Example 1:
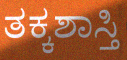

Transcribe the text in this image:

ತಕ್ಕಶಾಸ್ತಿ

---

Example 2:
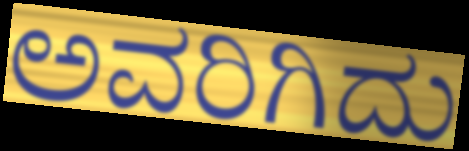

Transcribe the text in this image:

ಅವರಿಗಿದು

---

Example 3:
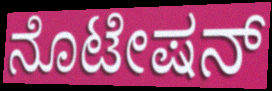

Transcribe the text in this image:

ನೊಟೇಷನ್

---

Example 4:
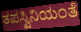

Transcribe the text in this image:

ತಪಸ್ವಿನಿಯಂತೆ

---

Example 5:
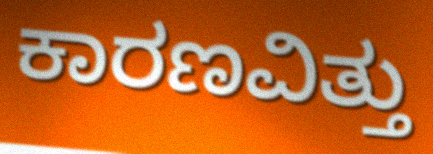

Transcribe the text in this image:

ಕಾರಣವಿತ್ತು